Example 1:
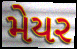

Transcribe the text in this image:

મેયર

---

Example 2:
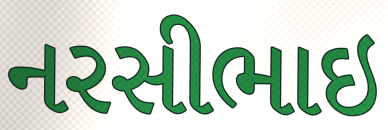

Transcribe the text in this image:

નરસીભાઇ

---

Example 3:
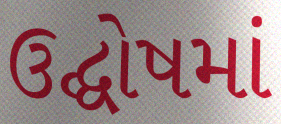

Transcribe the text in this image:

ઉદ્ઘોષમાં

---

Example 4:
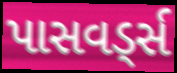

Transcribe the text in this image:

પાસવર્ડ્સ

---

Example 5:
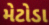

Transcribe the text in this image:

મેટોડા